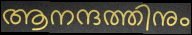
ആനന്ദത്തിനും